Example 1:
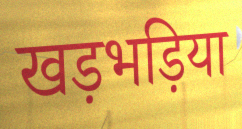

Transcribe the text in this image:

खड़भड़िया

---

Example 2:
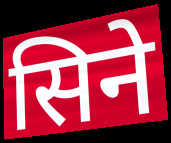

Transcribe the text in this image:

सिने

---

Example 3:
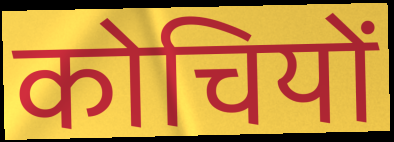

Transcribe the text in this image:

कोचियों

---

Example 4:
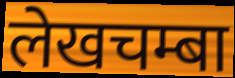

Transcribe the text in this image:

लेखचम्बा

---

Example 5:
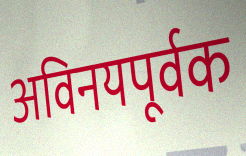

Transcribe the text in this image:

अविनयपूर्वक